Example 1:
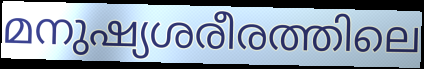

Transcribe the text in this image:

മനുഷ്യശരീരത്തിലെ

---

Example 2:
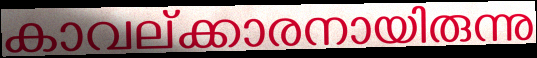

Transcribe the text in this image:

കാവല്ക്കാരനായിരുന്നു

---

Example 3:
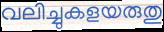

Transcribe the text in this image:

വലിച്ചുകളയരുതു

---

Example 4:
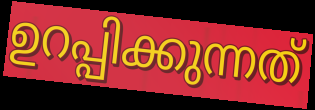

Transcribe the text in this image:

ഉറപ്പിക്കുന്നത്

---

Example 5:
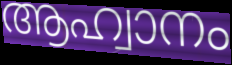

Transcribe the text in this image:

ആഹ്വാനം